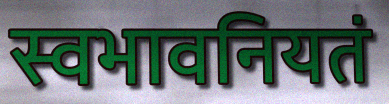
स्वभावनियतं